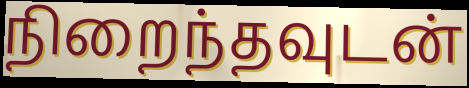
நிறைந்தவுடன்